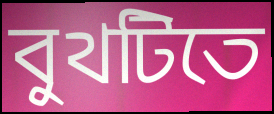
বুথটিতে